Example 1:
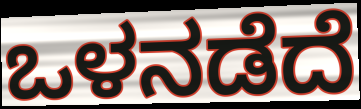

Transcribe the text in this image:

ಒಳನಡೆದೆ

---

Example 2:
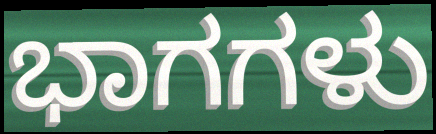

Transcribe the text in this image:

ಭಾಗಗಳು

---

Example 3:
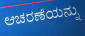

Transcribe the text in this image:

ಆಚರಣೆಯನ್ನು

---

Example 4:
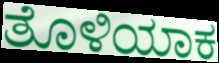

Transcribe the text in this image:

ತೊಳಿಯಾಕ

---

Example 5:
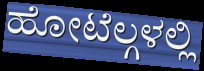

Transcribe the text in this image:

ಹೋಟೆಲ್ಗಳಲ್ಲಿ